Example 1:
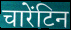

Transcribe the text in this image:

चारेंटिन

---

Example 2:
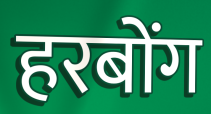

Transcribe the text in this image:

हरबोंग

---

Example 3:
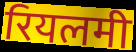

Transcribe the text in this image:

रियलमी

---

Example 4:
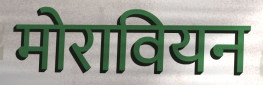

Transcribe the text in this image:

मोरावियन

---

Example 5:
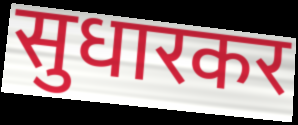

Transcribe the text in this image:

सुधारकर